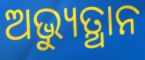
ଅଭ୍ୟୁତ୍ଥାନ